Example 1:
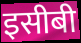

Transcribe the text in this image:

इसीबी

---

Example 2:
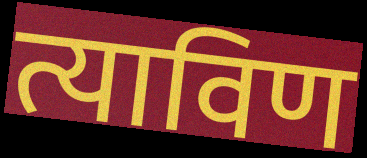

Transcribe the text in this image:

त्याविण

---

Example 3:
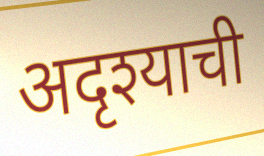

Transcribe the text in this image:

अदृश्याची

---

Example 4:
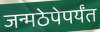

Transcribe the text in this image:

जन्मठेपेपर्यंत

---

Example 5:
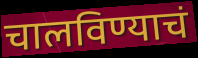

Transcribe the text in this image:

चालविण्याचं